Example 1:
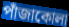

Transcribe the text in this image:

পাঁজাকোলা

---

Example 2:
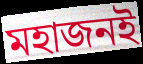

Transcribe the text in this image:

মহাজনই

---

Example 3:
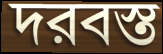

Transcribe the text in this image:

দরবস্ত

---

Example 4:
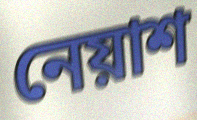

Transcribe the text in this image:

নেয়াশ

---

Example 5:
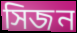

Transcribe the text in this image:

সিজন